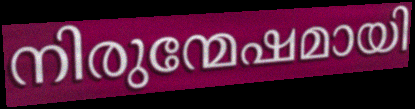
നിരുന്മേഷമായി